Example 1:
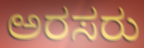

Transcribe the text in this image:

ಅರಸರು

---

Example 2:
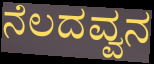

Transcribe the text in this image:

ನೆಲದವ್ವನ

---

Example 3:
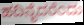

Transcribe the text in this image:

ಹದಿನೈದರೆಂದು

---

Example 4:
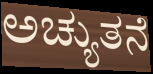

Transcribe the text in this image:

ಅಚ್ಯುತನೆ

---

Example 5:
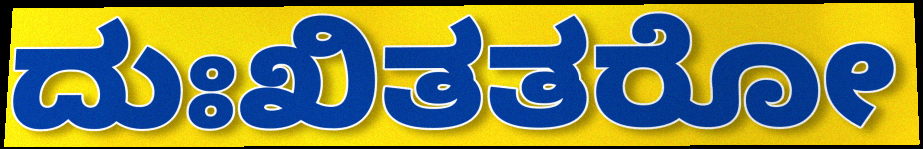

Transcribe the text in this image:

ದುಃಖಿತತರೋ